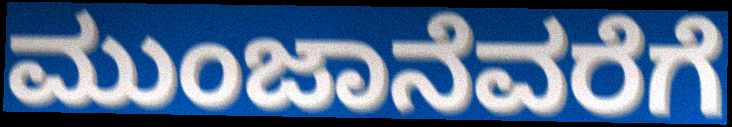
ಮುಂಜಾನೆವರೆಗೆ